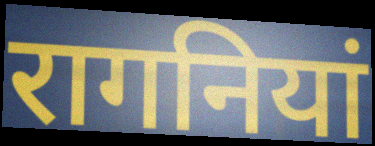
रागनियां